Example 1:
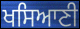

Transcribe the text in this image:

ਖਸਿਆਣੀ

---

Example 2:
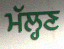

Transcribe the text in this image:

ਮੱਲ੍ਹਣ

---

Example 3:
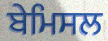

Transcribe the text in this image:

ਬੇਮਿਸਲ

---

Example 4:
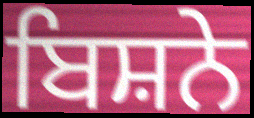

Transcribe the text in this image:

ਬਿਸ਼ਨੇ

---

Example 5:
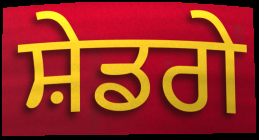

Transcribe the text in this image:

ਸ਼ੇਡਗੇ